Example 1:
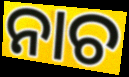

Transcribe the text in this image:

ନାଚ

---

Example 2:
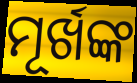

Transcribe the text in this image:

ମୂର୍ଖଙ୍କ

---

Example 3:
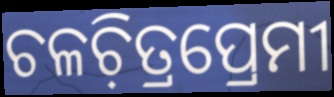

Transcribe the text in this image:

ଚଳଚ଼ିତ୍ରପ୍ରେମୀ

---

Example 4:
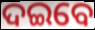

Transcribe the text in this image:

ଦଇବେ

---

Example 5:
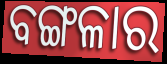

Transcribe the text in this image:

ବଙ୍ଗଳାର